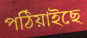
পঠিয়াইছে